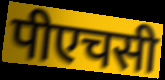
पीएचसी